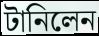
টানিলেন